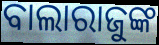
ବାଲାରାଜୁଙ୍କ